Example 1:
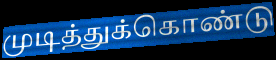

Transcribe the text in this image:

முடித்துக்கொண்டு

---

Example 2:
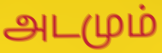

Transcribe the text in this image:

அடமும்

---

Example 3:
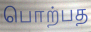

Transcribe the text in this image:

பொற்பத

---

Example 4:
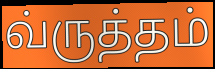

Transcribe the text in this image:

வ்ருத்தம்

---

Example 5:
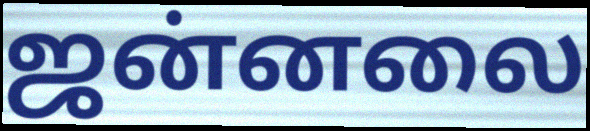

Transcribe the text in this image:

ஜன்னலை